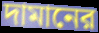
দামানের